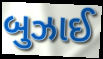
બુઝાઈ